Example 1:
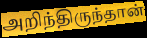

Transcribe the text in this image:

அறிந்திருந்தான்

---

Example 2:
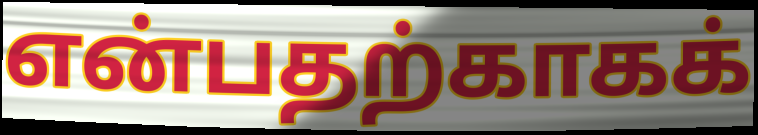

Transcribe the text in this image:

என்பதற்காகக்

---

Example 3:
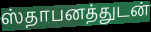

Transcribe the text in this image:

ஸ்தாபனத்துடன்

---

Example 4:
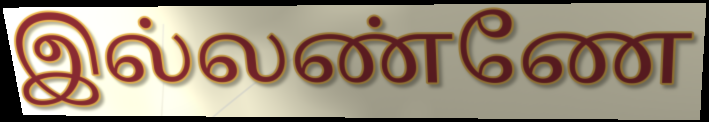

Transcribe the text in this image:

இல்லண்ணே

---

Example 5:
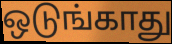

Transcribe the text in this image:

ஒடுங்காது